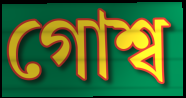
গোশ্ব